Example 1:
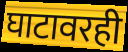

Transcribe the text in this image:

घाटावरही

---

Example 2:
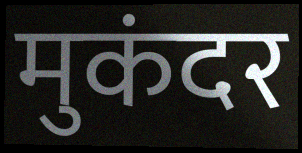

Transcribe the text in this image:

मुकंदर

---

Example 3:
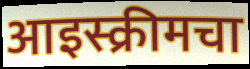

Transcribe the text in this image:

आइस्क्रीमचा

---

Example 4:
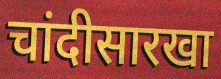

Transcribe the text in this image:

चांदीसारखा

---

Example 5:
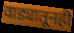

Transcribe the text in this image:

वाड्यातूनही